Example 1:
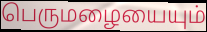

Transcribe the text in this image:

பெருமழையையும்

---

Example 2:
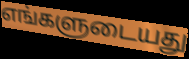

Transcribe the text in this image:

எங்களுடையது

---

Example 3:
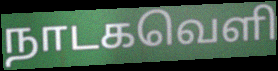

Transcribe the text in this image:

நாடகவெளி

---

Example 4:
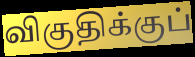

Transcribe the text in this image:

விகுதிக்குப்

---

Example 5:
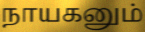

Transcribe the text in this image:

நாயகனும்